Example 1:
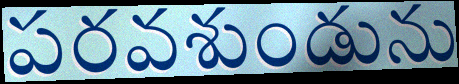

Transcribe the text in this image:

పరవశుండును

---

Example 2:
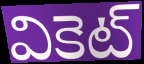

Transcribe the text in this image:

వికెట్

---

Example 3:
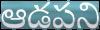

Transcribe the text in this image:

ఆడపని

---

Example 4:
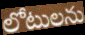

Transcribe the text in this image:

లోటులను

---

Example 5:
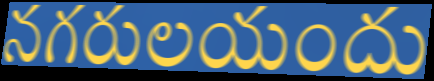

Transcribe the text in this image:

నగరులయందు